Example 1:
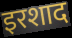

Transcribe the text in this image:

इरशाद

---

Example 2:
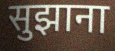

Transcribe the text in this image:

सुझाना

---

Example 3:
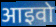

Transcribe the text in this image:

आइवो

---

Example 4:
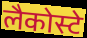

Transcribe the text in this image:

लैकोस्टे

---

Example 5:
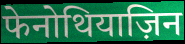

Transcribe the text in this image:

फेनोथियाज़िन